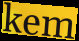
kem